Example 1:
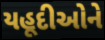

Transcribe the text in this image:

યહૂદીઓને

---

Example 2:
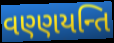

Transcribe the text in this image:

વણ્ણયન્તિ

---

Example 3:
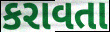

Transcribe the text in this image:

કરાવતા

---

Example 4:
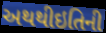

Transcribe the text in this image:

અથથીઇતિની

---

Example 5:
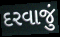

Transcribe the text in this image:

દરવાજું